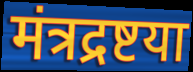
मंत्रद्रष्टया